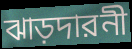
ঝাড়দারনী